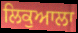
ਲਿਕੁਆਲਾ